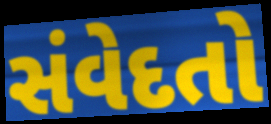
સંવેદતો